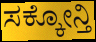
ಸಕ್ಕೋನ್ತಿ